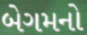
બેગમનો